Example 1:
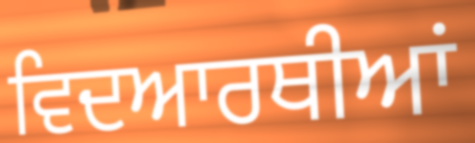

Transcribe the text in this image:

ਵਿਦਆਰਥੀਆਂ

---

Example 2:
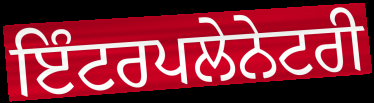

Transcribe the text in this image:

ਇੰਟਰਪਲੇਨੇਟਰੀ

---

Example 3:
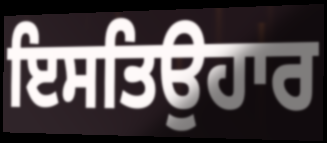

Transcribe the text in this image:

ਇਸਤਿਉਹਾਰ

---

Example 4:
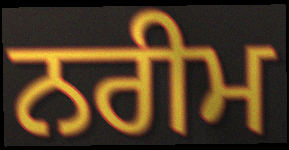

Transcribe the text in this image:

ਨਰੀਮ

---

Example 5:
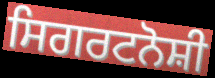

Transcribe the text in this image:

ਸਿਗਰਟਨੋਸ਼ੀ